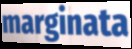
marginata